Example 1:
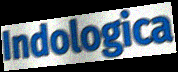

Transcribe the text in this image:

Indologica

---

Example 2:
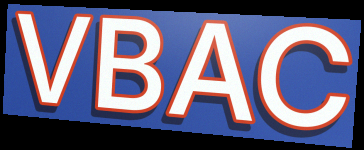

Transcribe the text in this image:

VBAC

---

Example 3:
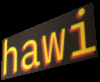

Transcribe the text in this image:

hawi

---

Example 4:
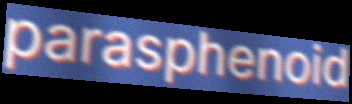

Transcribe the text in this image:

parasphenoid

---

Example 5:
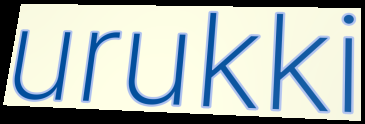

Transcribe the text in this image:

urukki